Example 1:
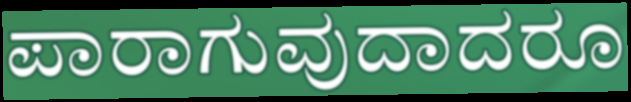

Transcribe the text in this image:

ಪಾರಾಗುವುದಾದರೂ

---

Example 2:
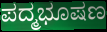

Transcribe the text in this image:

ಪದ್ಮಭೂಷಣ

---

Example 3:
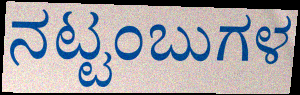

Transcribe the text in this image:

ನಟ್ಟಂಬುಗಳ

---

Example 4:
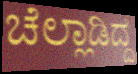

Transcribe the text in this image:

ಚೆಲ್ಲಾಡಿದ್ದ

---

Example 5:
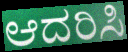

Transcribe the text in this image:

ಆದರಿಸಿ